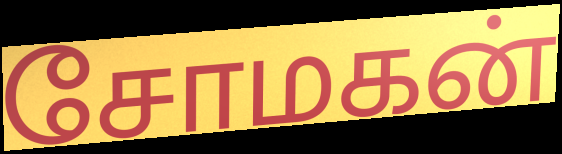
சோமகன்